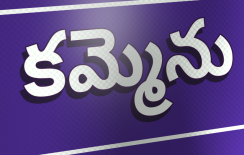
కమ్మెను